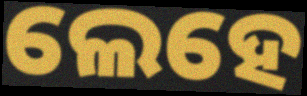
ଲେହେ